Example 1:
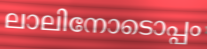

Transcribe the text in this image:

ലാലിനോടൊപ്പം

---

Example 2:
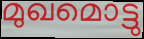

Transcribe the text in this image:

മുഖമൊട്ടു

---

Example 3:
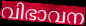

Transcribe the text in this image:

വിഭാവന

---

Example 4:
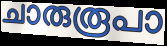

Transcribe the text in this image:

ചാരുരൂപാ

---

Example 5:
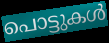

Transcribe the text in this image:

പൊട്ടുകൾ